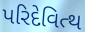
પરિદેવિત્થ